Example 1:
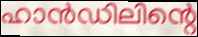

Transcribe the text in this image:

ഹാൻഡിലിന്റെ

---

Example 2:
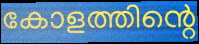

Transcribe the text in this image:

കോളത്തിന്റെ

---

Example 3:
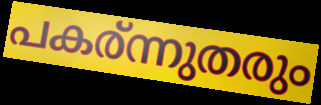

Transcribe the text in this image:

പകര്ന്നുതരും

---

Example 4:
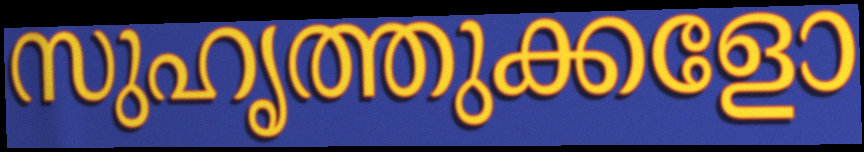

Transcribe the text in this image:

സുഹൃത്തുക്കളോ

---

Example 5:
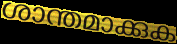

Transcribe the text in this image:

ശാന്തമാക്കുക